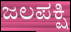
ಜಲಪಕ್ಷಿ